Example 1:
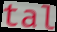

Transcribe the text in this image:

tal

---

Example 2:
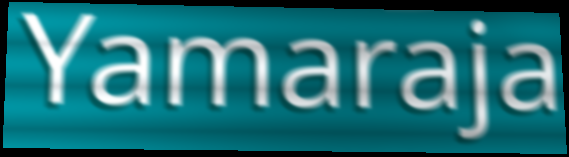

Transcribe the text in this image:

Yamaraja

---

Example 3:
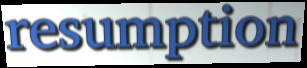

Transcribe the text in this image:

resumption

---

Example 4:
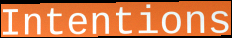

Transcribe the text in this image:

Intentions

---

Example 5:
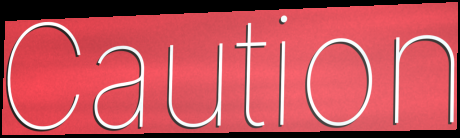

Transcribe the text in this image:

Caution